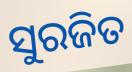
ସୁରଜିତ